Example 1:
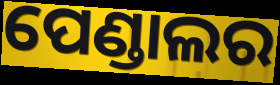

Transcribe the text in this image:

ପେଣ୍ଡାଲର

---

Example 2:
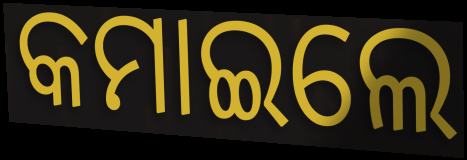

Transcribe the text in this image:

କମାଇଲେ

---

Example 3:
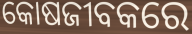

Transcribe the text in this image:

କୋଷଜୀବକରେ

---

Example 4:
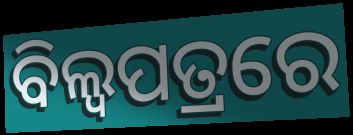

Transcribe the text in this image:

ବିଲ୍ଵପତ୍ରରେ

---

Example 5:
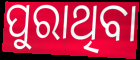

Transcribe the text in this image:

ପୁରାଥିବା